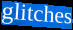
glitches